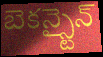
బెకన్స్టైన్